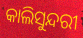
କାଲିସୁନ୍ଦରୀ